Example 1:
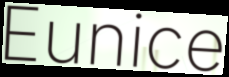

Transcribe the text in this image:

Eunice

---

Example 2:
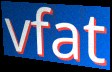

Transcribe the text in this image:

vfat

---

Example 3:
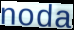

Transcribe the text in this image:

noda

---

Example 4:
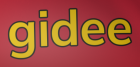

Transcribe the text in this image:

gidee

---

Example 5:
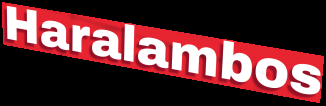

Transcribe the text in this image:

Haralambos